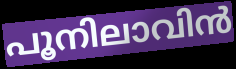
പൂനിലാവിൻ